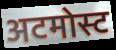
अटमोस्ट